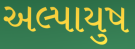
અલ્પાયુષ